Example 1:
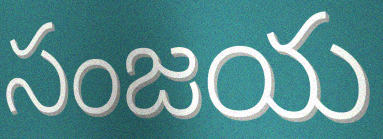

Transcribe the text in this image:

సంజయ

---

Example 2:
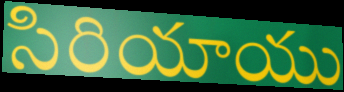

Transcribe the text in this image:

సిరియాయు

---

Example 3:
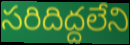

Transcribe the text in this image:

సరిదిద్దలేని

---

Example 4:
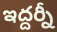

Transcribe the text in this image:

ఇద్దర్నీ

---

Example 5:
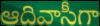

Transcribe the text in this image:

ఆదివాసీగా